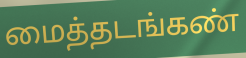
மைத்தடங்கண்